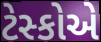
ટેસ્કોએ